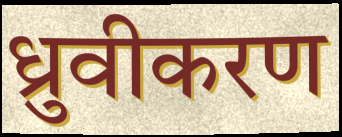
ध्रुवीकरण